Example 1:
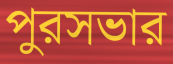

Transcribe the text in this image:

পুরসভার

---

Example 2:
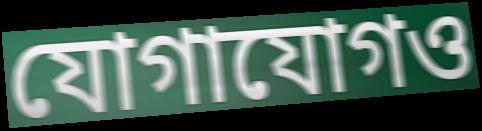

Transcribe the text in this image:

যোগাযোগও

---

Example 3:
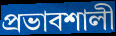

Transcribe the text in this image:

প্রভাবশালী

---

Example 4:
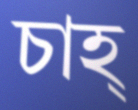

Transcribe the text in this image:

চাহ্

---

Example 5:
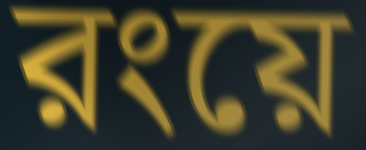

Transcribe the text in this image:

রংয়ে